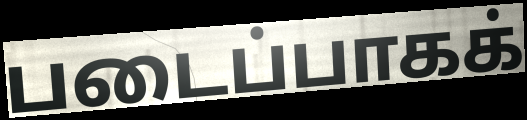
படைப்பாகக்